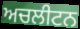
ਅਚਲੀਟਨ